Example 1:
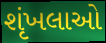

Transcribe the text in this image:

શૃંખલાઓ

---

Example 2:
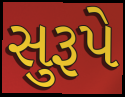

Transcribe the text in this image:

સુરૂપે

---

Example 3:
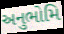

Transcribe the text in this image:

અનુભોમિ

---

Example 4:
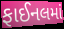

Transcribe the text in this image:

ફાઈનલમાં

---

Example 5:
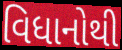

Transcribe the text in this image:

વિધાનોથી